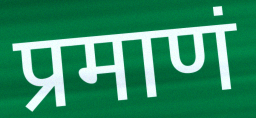
प्रमाणं